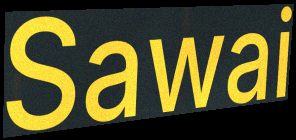
Sawai